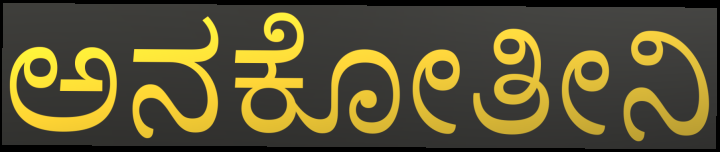
ಅನಕೋತೀನಿ